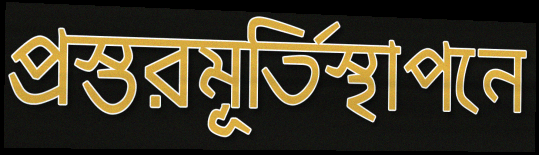
প্রস্তরমূর্তিস্থাপনে